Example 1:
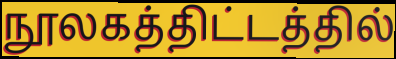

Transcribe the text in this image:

நூலகத்திட்டத்தில்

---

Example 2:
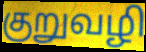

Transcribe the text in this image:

குறுவழி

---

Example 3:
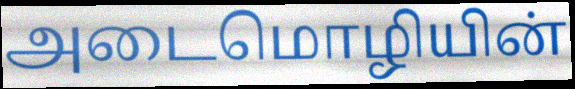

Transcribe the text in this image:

அடைமொழியின்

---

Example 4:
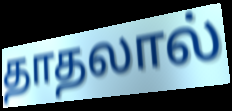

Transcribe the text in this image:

தாதலால்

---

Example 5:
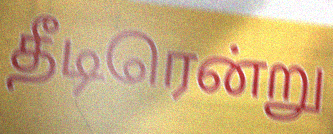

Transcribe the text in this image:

தீடிரென்று